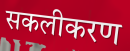
सकलीकरण